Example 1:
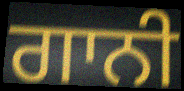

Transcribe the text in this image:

ਗਾਨੀ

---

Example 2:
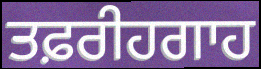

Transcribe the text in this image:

ਤਫ਼ਰੀਹਗਾਹ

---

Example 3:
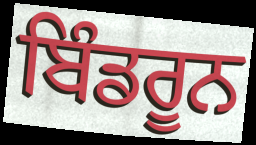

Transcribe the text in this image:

ਬਿੰਡਰੂਨ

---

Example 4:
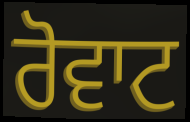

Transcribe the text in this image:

ਰੋਵਾਟ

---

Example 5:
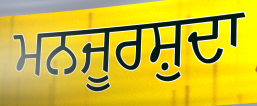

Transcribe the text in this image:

ਮਨਜੂਰਸ਼ੁਦਾ